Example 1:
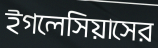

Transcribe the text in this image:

ইগলেসিয়াসের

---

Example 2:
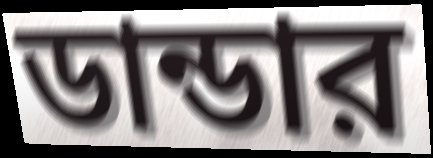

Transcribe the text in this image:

ডান্ডার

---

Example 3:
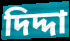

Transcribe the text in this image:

দিদ্দা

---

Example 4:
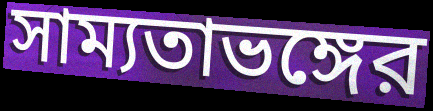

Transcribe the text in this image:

সাম্যতাভঙ্গের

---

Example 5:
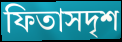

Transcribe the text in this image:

ফিতাসদৃশ